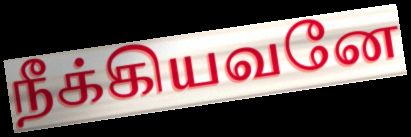
நீக்கியவனே